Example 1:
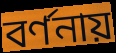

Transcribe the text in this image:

বর্ণনায়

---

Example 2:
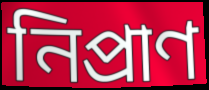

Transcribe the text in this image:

নিপ্রাণ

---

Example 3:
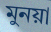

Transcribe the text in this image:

মুনয়া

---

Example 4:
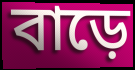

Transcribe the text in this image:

বাড়ে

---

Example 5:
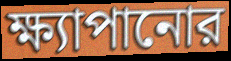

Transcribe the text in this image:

ক্ষ্যাপানোর